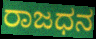
ರಾಜಧನ